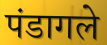
पंडागले